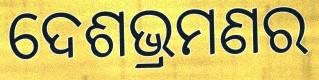
ଦେଶଭ୍ରମଣର